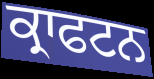
ਕ੍ਰਾਫਟਨ